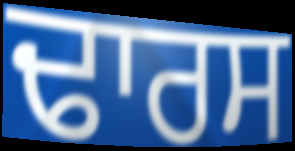
ਢਾਰਸ